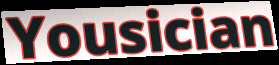
Yousician